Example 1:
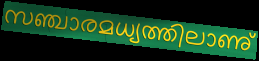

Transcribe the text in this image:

സഞ്ചാരമധ്യത്തിലാണു്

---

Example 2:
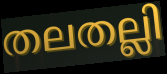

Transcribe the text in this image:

തലതല്ലി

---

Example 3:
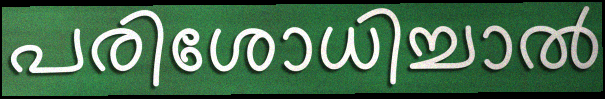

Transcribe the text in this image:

പരിശോധിച്ചാൽ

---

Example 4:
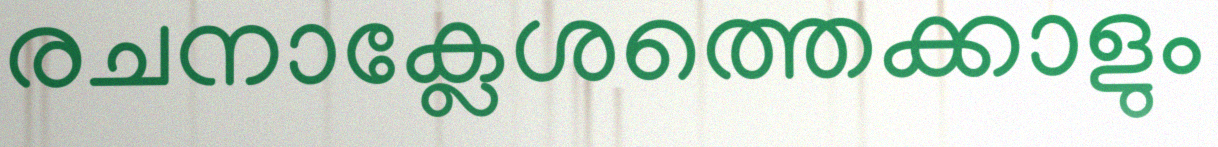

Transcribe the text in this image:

രചനാക്ലേശത്തെക്കാളും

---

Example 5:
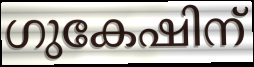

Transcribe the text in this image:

ഗുകേഷിന്